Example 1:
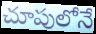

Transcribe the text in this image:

చూపులోనే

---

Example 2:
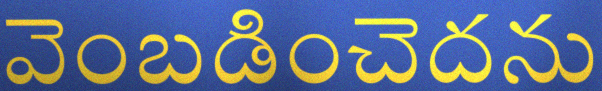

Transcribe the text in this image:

వెంబడించెదను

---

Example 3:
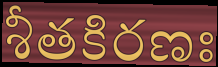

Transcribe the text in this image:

శీతకిరణః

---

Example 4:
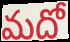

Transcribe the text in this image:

మదో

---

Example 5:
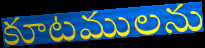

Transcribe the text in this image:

కూటములను